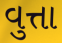
વુત્તા